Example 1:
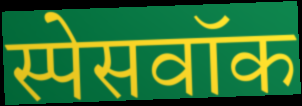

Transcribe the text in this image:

स्पेसवॉक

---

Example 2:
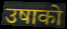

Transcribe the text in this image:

उषाको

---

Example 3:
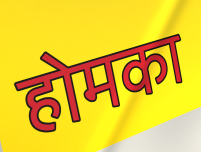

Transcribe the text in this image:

होमका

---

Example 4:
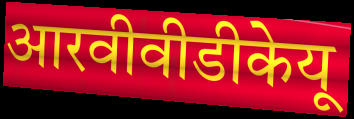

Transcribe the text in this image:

आरवीवीडीकेयू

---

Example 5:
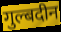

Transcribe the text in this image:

गुल्बदीन